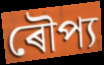
ৰৌপ্য